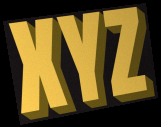
XYZ